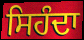
ਸਿਹੰਦਾ